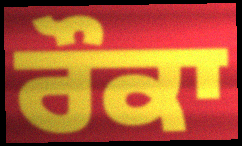
ਰੌਕਾ